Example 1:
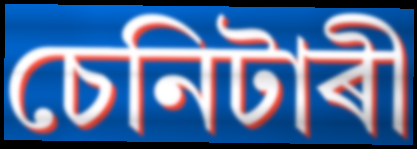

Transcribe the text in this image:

চেনিটাৰী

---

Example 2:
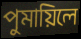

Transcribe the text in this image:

পুমায়িলে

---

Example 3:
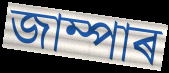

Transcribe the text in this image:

জাম্পাৰ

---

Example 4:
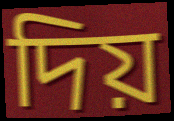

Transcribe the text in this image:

দিয়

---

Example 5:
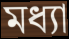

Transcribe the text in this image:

মধ্যা